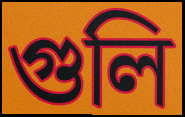
গুলি